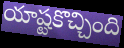
యాష్టకొచ్చింది